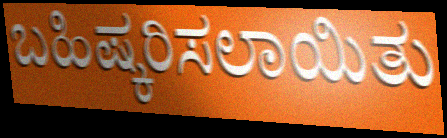
ಬಹಿಷ್ಕರಿಸಲಾಯಿತು